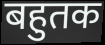
बहुतक